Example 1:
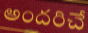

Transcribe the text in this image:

అందరిచే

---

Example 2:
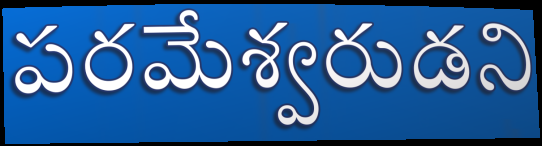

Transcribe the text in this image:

పరమేశ్వరుడని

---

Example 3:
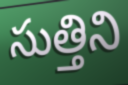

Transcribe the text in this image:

సుత్తిని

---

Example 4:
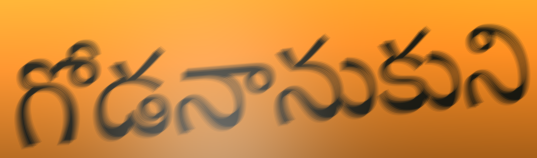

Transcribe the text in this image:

గోడనానుకుని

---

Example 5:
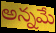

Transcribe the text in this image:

అన్నమే